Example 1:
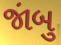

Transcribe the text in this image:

જાંબુ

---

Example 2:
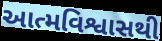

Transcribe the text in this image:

આત્મવિશ્વાસથી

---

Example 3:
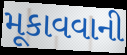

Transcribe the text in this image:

મૂકાવવાની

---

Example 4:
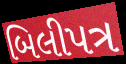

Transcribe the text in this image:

બિલીપત્ર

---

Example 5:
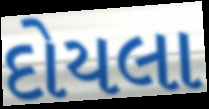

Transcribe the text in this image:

દોયલા